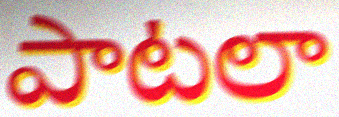
పాటలా